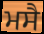
ਮਸੈ